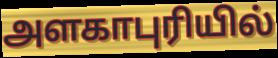
அளகாபுரியில்